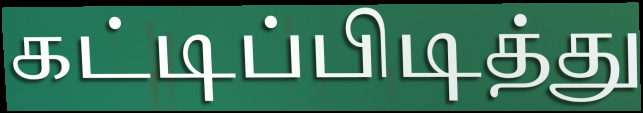
கட்டிப்பிடித்து